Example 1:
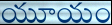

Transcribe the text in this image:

యూయం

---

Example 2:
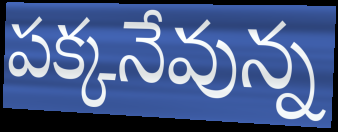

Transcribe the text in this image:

పక్కనేవున్న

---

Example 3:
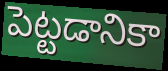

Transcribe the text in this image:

పెట్టడానికా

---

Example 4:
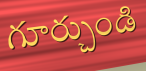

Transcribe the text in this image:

గూర్చుండి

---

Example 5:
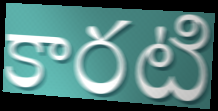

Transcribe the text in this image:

కారటి